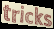
tricks